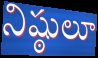
నిష్ఠులూ